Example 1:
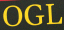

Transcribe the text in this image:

OGL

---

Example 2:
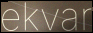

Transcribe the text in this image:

ekvar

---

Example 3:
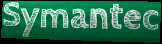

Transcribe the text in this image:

Symantec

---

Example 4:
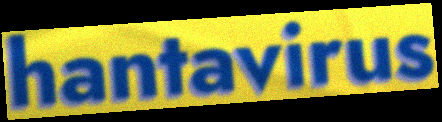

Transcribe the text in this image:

hantavirus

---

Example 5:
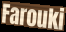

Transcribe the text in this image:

Farouki